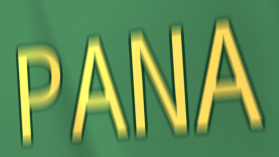
PANA